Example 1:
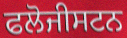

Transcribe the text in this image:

ਫਲੋਜੀਸਟਨ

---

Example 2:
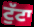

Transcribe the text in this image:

ਟੁੱਟਾ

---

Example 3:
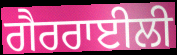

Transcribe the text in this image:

ਗੈਰਰਾਈਲੀ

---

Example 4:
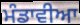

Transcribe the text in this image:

ਮੰਡਾਵੀਆ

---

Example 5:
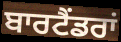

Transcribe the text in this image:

ਬਾਰਟੈਂਡਰਾਂ